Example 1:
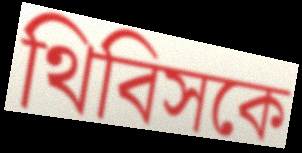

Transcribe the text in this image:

থিবিসকে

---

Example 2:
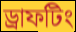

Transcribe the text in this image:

ড্রাফটিং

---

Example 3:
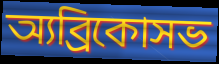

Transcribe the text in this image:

অ্যব্রিকোসভ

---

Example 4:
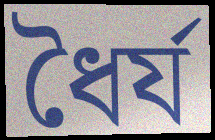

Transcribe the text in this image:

ধৈর্য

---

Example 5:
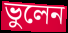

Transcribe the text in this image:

ভুলেন